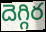
దెగ్గిర